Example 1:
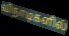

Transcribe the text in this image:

விநாடிகளில்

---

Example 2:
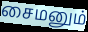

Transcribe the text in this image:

சைமனும்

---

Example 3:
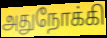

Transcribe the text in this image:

அதுநோக்கி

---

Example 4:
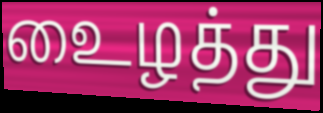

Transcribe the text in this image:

உைழத்து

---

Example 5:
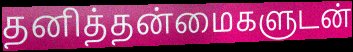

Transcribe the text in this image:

தனித்தன்மைகளுடன்